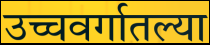
उच्चवर्गातल्या